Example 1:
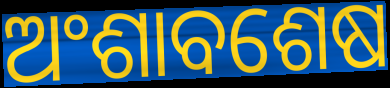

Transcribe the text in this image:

ଅଂଶାବଶେଷ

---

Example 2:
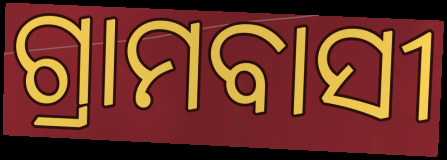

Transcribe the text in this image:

ଗ୍ରାମବାସୀ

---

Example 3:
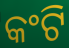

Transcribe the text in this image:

କଂଟି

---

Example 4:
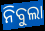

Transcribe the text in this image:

ନିବୁଲା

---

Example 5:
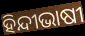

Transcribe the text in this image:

ହିନ୍ଦୀଭାଷୀ